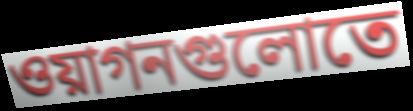
ওয়াগনগুলোতে